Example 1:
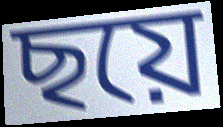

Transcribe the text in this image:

ছয়ে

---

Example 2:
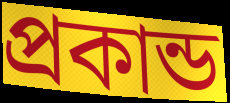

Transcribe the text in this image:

প্রকান্ড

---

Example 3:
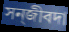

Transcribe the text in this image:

সন্জীবদা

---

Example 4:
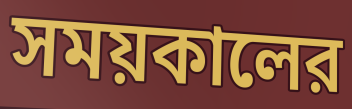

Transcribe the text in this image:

সময়কালের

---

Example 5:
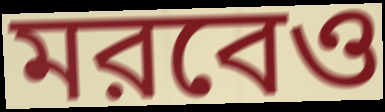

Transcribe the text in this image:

মরবেও